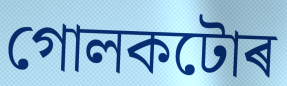
গোলকটোৰ